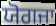
ਯੋਗਜਾ